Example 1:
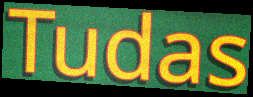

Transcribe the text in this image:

Tudas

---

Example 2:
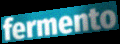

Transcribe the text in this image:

fermento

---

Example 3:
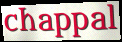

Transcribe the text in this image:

chappal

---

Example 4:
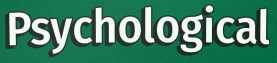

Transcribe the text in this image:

Psychological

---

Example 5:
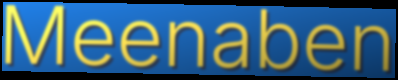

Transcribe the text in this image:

Meenaben